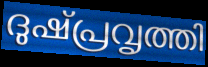
ദുഷ്പ്രവൃത്തി